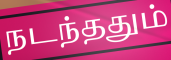
நடந்ததும்